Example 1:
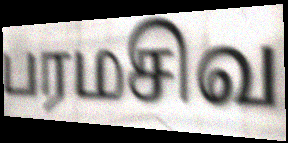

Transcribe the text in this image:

பரமசிவ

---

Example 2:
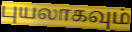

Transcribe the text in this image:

புயலாகவும்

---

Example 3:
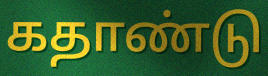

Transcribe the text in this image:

கதாண்டு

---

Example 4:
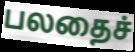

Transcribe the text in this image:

பலதைச்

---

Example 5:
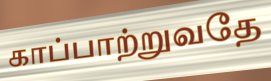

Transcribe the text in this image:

காப்பாற்றுவதே